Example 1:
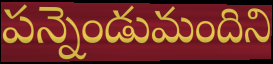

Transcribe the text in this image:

పన్నెండుమందిని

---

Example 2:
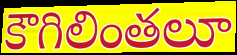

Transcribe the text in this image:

కౌగిలింతలూ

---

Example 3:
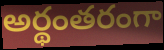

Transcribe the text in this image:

అర్థంతరంగా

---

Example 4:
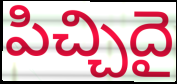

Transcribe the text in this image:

పిచ్చిదై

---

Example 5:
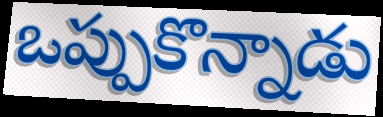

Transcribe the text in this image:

ఒప్పుకొన్నాడు